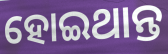
ହୋଇଥାନ୍ତ